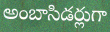
అంబాసిడర్లుగా